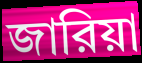
জারিয়া